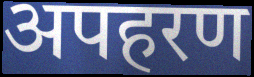
अपहरण